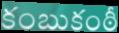
కంబుకంఠీ